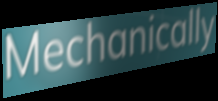
Mechanically